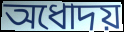
অধোদয়